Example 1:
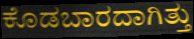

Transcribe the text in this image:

ಕೊಡಬಾರದಾಗಿತ್ತು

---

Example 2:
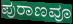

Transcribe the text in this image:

ಪುರಾಣವೂ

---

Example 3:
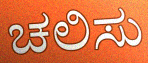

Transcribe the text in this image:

ಚಲಿಸು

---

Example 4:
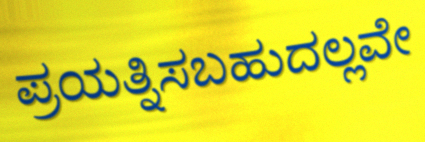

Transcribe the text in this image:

ಪ್ರಯತ್ನಿಸಬಹುದಲ್ಲವೇ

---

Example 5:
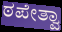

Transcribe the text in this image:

ಠಪೇತ್ವಾ